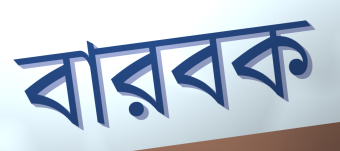
বারবক